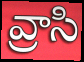
వ్రాసి